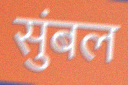
सुंबल